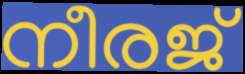
നീരജ്